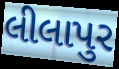
લીલાપુર